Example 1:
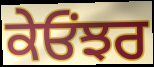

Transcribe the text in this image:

ਕੇਓਂਝਰ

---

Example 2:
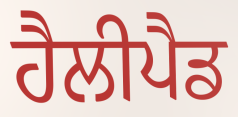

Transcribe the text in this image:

ਹੈਲੀਪੈਡ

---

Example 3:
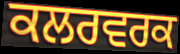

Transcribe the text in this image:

ਕਲਰਵਰਕ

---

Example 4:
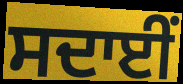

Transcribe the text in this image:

ਸਦਾਈਂ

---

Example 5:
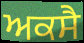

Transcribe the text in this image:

ਅਕਸੈ